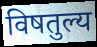
विषतुल्य